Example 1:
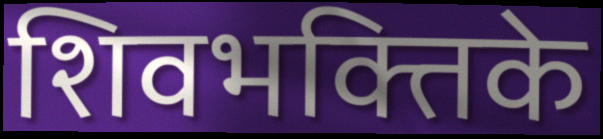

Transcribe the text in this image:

शिवभक्तिके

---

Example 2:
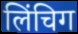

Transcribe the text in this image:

लिंचिग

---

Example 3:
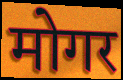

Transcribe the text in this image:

मोगर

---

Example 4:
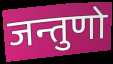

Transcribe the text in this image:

जन्तुणो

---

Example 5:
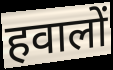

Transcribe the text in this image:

हवालों